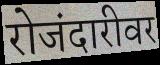
रोजंदारीवर